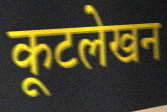
कूटलेखन